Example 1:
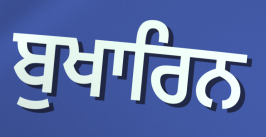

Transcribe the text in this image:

ਬੁਖਾਰਿਨ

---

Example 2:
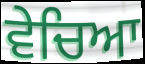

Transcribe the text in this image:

ਵੇਚਿਆ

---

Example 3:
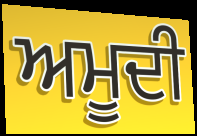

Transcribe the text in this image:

ਅਮੂਦੀ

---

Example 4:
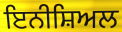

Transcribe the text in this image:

ਇਨੀਸ਼ਿਅਲ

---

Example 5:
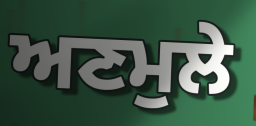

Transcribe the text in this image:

ਅਣਮੁਲੇ